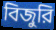
বিজুরি